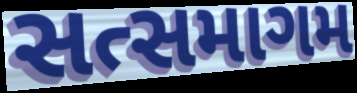
સત્સમાગમ